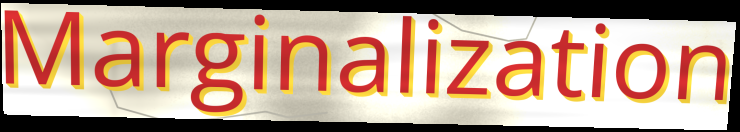
Marginalization